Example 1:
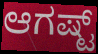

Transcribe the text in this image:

ಆಗಷ್ಟ್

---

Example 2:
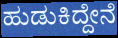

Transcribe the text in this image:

ಹುಡುಕಿದ್ದೇನೆ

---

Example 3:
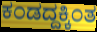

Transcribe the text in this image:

ಕಂಡದ್ದಕ್ಕಿಂತ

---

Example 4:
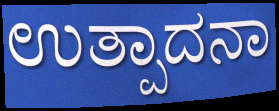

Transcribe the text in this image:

ಉತ್ಪಾದನಾ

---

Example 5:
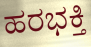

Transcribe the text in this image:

ಹರಭಕ್ತಿ